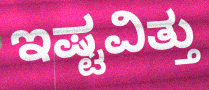
ಇಷ್ಟವಿತ್ತು